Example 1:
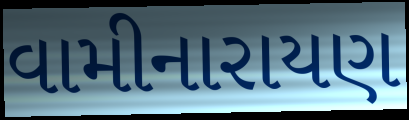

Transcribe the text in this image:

વામીનારાયણ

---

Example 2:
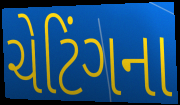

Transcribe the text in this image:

ચેટિંગના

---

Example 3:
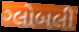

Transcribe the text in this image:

ગ્લોબલી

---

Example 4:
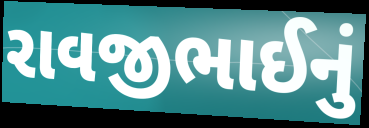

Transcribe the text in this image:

રાવજીભાઈનું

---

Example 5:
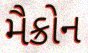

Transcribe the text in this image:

મૈક્રોન